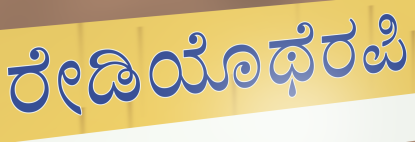
ರೇಡಿಯೊಥೆರಪಿ